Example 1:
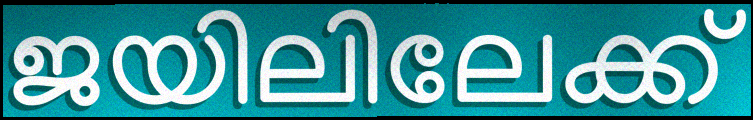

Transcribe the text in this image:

ജയിലിലേക്ക്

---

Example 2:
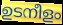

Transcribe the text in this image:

ഉടനീളം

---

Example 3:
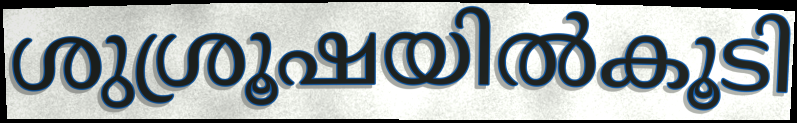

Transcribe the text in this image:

ശുശ്രൂഷയിൽകൂടി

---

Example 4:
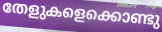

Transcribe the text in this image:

തേളുകളെക്കൊണ്ടു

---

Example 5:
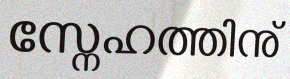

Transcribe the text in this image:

സ്നേഹത്തിനു്